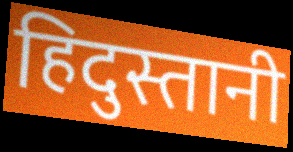
हिदुस्तानी